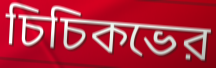
চিচিকভের